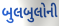
બુલબુલોની